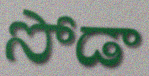
సోడా